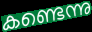
കണ്ടെന്നു